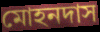
মোহনদাস